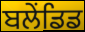
ਬਲੇਂਡਿਡ